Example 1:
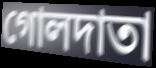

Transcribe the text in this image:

গোলদাতা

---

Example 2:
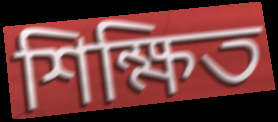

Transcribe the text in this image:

শিক্ষিত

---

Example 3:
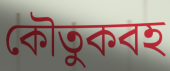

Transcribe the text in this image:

কৌতুকবহ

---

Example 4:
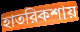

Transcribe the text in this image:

হাতরিকশায়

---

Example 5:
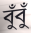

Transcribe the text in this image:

বুঁবুঁ